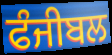
ਫੰਜੀਬਲ